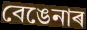
বেঙেনাৰ